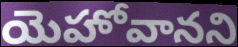
యెహోవానని